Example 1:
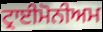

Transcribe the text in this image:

ਟ੍ਰਾਈਮੋਨੀਅਮ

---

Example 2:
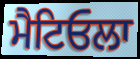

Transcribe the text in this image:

ਮੈਟਿਓਲਾ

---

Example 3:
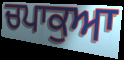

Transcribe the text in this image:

ਚਪਾਕੁਆ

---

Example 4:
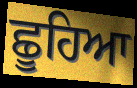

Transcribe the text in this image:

ਛੂਹਿਆ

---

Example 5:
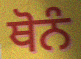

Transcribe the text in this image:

ਥੋਨੰ